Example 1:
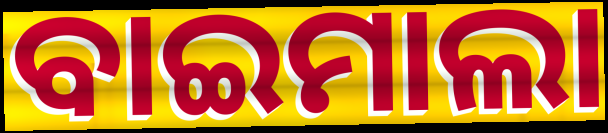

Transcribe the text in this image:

ବାଇମାଲା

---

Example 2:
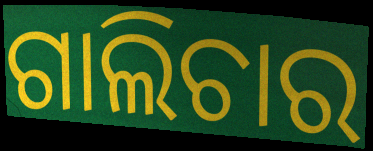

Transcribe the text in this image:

ଗାଲିଚାର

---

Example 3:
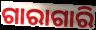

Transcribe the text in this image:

ଗାରାଗାରି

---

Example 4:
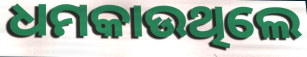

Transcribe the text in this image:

ଧମକାଉଥିଲେ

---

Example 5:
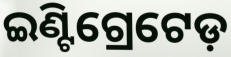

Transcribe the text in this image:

ଇଣ୍ଟିଗ୍ରେଟେଡ଼